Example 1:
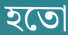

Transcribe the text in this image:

হতো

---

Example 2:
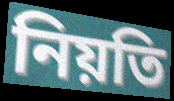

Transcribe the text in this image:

নিয়তি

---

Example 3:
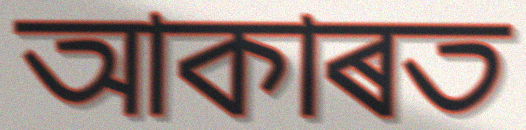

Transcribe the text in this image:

আকাৰত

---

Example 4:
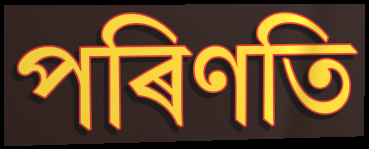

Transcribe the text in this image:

পৰিণতি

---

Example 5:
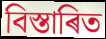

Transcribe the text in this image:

বিস্তাৰিত